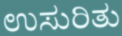
ಉಸುರಿತು